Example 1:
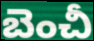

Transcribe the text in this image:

బెంచీ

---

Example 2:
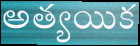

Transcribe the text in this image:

అత్యయిక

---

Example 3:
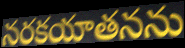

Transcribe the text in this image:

నరకయాతనను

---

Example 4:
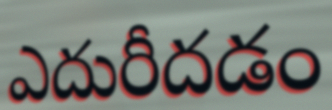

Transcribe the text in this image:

ఎదురీదడం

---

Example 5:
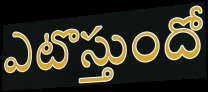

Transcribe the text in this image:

ఎటొస్తుందో